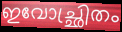
ഇവോച്ഛ്രിതം